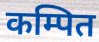
कम्पित